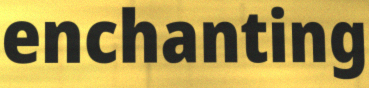
enchanting